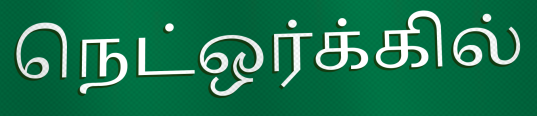
நெட்ஒர்க்கில்